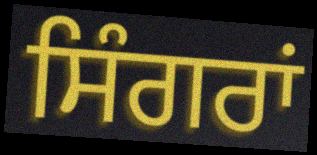
ਸਿੰਗਰਾਂ